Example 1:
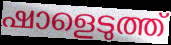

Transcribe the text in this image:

ഷാളെടുത്ത്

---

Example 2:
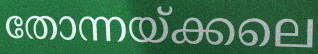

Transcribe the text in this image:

തോന്നയ്ക്കലെ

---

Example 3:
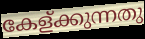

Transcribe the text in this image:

കേള്ക്കുന്നതു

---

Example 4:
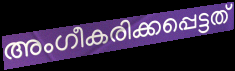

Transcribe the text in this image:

അംഗീകരിക്കപ്പെട്ടത്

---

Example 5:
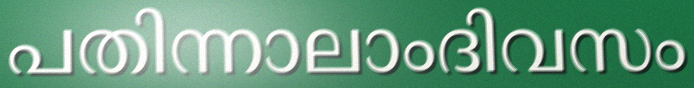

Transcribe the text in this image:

പതിന്നാലാംദിവസം